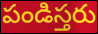
పండిస్తరు